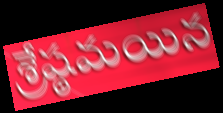
శ్రేష్ఠమయిన